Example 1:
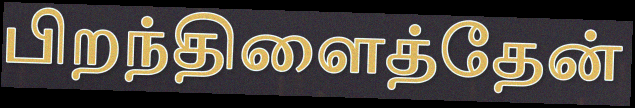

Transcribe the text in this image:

பிறந்திளைத்தேன்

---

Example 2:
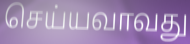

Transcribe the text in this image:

செய்யவாவது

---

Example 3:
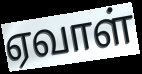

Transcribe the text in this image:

ஏவாள்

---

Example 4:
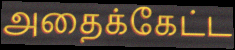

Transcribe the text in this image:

அதைக்கேட்ட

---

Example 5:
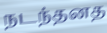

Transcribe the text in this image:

நடந்தனத